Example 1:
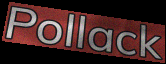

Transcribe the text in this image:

Pollack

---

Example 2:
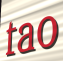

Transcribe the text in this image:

tao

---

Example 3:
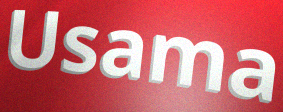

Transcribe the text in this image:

Usama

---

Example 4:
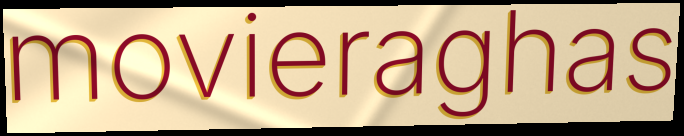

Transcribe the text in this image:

movieraghas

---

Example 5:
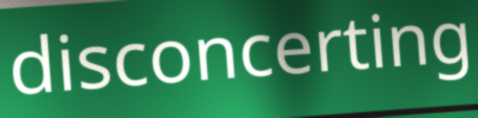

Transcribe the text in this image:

disconcerting